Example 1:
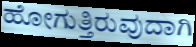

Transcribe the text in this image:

ಹೋಗುತ್ತಿರುವುದಾಗಿ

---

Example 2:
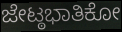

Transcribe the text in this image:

ಜೇಟ್ಠಭಾತಿಕೋ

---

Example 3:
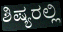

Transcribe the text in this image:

ಶಿಷ್ಯರಲ್ಲಿ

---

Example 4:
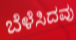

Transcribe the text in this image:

ಬೆಳೆಸಿದವು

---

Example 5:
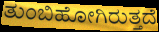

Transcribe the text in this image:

ತುಂಬಿಹೋಗಿರುತ್ತದೆ